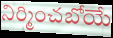
నిర్మించబోయే